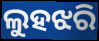
ଲୁହଝରି